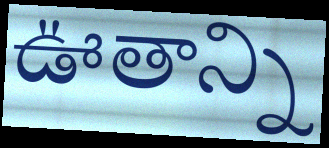
ఊతాన్ని